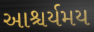
આશ્ચર્યમય